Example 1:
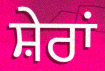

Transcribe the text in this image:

ਸ਼ੇਰਾਂ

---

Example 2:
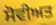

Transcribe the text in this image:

ਸੋਵੀਅਤ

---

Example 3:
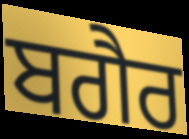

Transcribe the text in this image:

ਬਗੈਰ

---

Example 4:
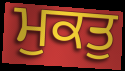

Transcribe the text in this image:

ਮੁਕਤੁ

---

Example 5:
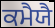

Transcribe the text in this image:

ਕਮੈਯੈ